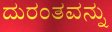
ದುರಂತವನ್ನು